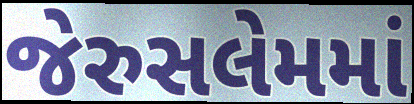
જેરુસલેમમાં